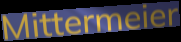
Mittermeier